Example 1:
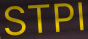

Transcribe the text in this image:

STPI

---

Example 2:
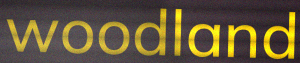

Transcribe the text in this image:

woodland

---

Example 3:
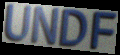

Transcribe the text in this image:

UNDF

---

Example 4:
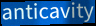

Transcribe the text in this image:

anticavity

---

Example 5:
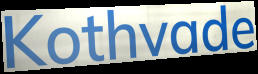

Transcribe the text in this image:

Kothvade